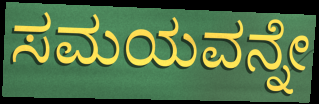
ಸಮಯವನ್ನೇ